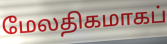
மேலதிகமாகப்